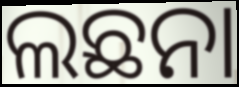
ଲଛନା